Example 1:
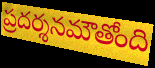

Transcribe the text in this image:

ప్రదర్శనమౌతోంది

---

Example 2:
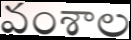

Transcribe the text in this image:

వంశాల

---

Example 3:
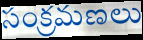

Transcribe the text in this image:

సంక్రమణలు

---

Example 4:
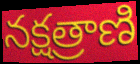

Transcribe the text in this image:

నక్షత్రాణి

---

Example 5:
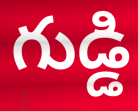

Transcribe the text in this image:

గుడ్డి